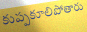
కుప్పకూలిపోతారు